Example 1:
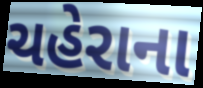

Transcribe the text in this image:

ચહેરાના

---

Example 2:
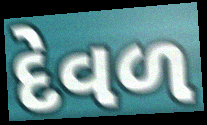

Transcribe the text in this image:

દેવળ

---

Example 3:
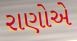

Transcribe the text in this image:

રાણોએ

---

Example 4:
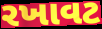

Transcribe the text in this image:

રખાવટ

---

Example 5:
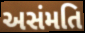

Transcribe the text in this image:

અસંમતિ